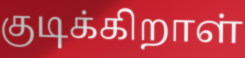
குடிக்கிறாள்